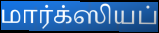
மார்க்ஸியப்